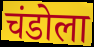
चंडोला